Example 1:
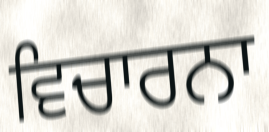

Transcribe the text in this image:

ਵਿਚਾਰਨਾ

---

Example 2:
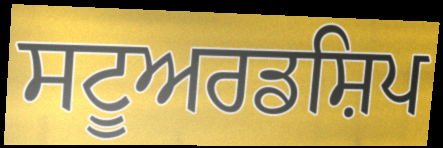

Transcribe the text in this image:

ਸਟੂਅਰਡਸ਼ਿਪ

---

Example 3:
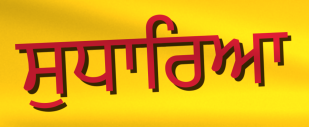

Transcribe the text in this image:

ਸੁਧਾਰਿਆ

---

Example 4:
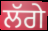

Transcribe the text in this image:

ਲੱਗੇ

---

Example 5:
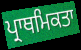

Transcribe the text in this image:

ਪ੍ਰਾਥਮਿਕਤਾ